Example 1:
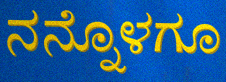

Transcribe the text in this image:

ನನ್ನೊಳಗೂ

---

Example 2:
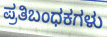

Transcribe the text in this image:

ಪ್ರತಿಬಂಧಕಗಳು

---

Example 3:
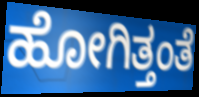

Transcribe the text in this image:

ಹೋಗಿತ್ತಂತೆ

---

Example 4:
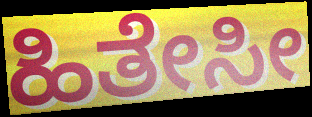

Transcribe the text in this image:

ಹಿತೇಸೀ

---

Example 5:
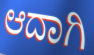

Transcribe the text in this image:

ಆದಾಗಿ